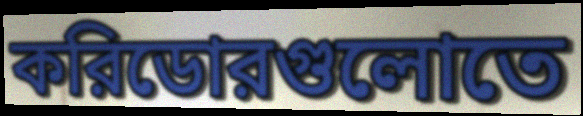
করিডোরগুলোতে